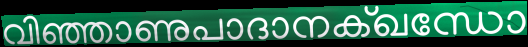
വിഞ്ഞാണുപാദാനക്ഖന്ധോ